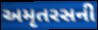
અમૃતરસની